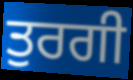
ਤੁਰਗੀ